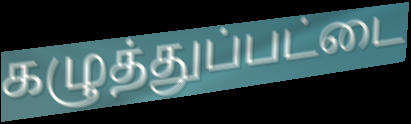
கழுத்துப்பட்டை